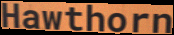
Hawthorn